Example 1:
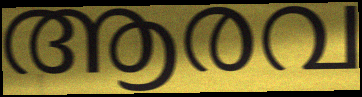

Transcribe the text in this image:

ആരവ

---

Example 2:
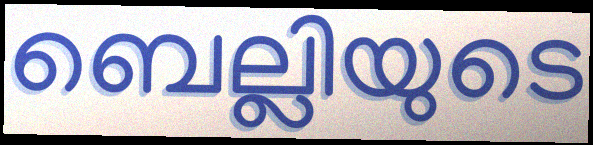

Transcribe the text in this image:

ബെല്ലിയുടെ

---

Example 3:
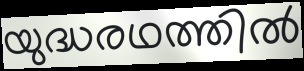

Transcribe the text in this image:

യുദ്ധരഥത്തിൽ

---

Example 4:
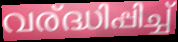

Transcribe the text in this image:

വര്ദ്ധിപ്പിച്ച്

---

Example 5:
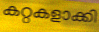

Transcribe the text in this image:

കറ്റകളാക്കി